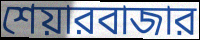
শেয়ারবাজার